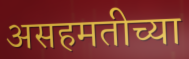
असहमतीच्या